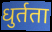
धुर्तता